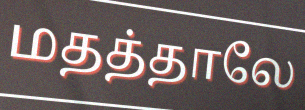
மதத்தாலே